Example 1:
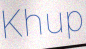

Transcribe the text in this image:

Khup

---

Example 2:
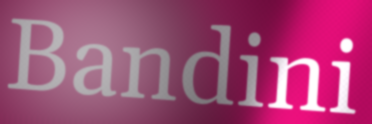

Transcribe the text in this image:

Bandini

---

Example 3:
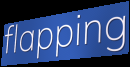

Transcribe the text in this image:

flapping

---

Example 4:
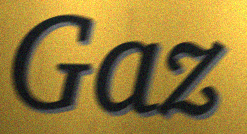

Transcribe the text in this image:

Gaz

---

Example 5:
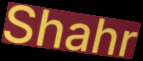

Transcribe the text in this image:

Shahr